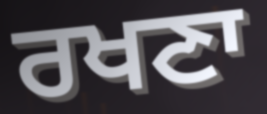
ਰਖਣਾ